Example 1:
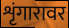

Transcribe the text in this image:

शृंगारावर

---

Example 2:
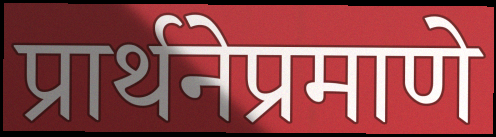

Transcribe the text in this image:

प्रार्थनेप्रमाणे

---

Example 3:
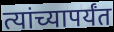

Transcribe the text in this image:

त्यांच्यापर्यंत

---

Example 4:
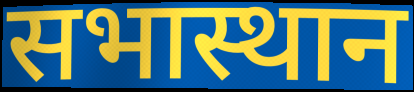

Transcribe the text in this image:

सभास्थान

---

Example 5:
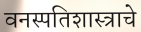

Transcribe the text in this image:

वनस्पतिशास्त्राचे